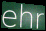
ehr